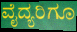
ವೈದ್ಯರಿಗೂ